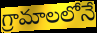
గ్రామాలలోనే